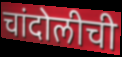
चांदोलीची